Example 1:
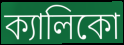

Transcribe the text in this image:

ক্যালিকো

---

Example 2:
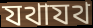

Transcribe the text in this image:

যথাযথ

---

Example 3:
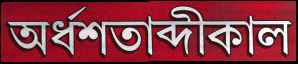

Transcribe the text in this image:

অর্ধশতাব্দীকাল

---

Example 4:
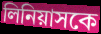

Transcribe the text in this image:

লিনিয়াসকে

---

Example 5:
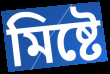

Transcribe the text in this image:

মিষ্টে